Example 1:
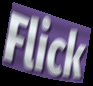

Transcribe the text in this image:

Flick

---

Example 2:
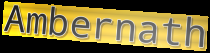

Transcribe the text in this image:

Ambernath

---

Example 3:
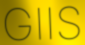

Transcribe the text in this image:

GIIS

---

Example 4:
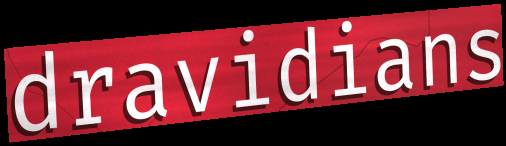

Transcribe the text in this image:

dravidians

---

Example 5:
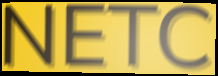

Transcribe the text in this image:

NETC